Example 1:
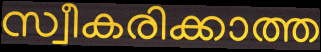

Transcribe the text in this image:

സ്വീകരിക്കാത്ത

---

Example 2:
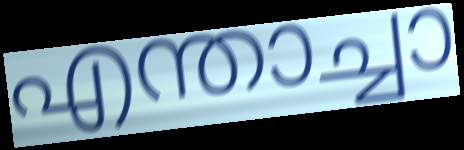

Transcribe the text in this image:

എന്താച്ചാ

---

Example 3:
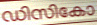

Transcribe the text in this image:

ഡിസികോ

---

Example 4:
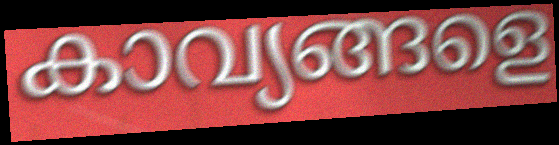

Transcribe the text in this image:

കാവ്യങ്ങളെ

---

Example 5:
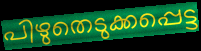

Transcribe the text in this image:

പിഴുതെടുക്കപ്പെട്ട